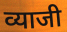
व्याजी